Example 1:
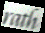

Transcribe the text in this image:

rath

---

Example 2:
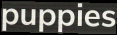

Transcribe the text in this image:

puppies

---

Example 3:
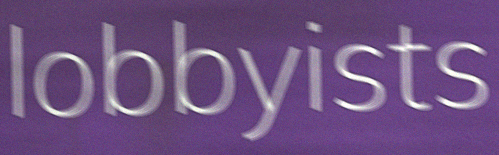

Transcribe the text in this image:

lobbyists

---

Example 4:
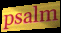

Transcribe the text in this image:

psalm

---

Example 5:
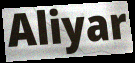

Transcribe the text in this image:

Aliyar